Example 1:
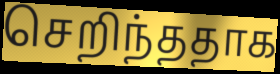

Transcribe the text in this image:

செறிந்ததாக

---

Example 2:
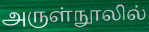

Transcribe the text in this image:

அருள்நூலில்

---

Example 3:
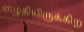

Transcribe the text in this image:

எழுதியிருக்கிற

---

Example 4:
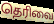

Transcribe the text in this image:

தெரிவை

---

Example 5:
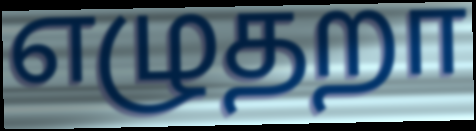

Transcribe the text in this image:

எழுதறா